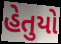
હેતુયો